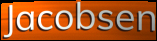
Jacobsen